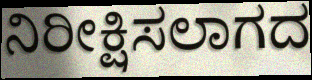
ನಿರೀಕ್ಷಿಸಲಾಗದ